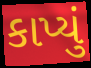
કાપ્યું